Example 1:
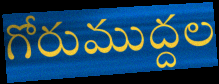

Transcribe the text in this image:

గోరుముద్దల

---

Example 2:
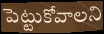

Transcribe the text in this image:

పెట్టుకోవాలని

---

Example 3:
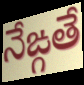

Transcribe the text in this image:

నేఙ్గతే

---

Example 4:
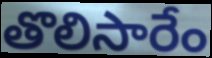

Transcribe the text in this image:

తొలిసారేం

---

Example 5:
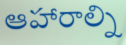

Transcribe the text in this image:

ఆహారాల్ని